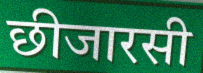
छीजारसी